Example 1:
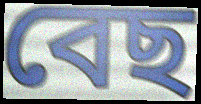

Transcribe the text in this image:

বেছ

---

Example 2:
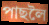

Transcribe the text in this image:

পাছলৈ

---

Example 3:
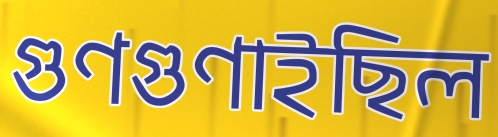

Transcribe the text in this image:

গুণগুণাইছিল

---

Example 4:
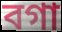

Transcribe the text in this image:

বগা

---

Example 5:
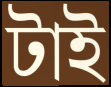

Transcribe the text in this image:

টাই